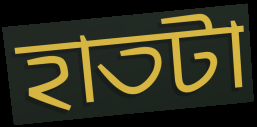
হাতটা